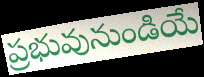
ప్రభువునుండియే